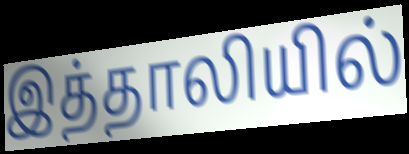
இத்தாலியில்